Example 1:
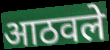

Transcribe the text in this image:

आठवले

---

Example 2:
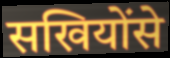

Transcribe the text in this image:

सखियोंसे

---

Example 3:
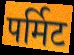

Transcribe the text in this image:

पर्मिट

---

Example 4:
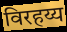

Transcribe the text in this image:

विरहय्य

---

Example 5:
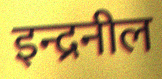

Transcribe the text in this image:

इन्द्रनील